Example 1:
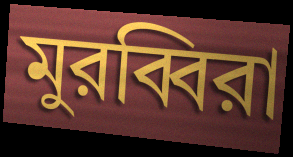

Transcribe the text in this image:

মুরব্বিরা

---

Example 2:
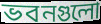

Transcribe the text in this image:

ভবনগুলো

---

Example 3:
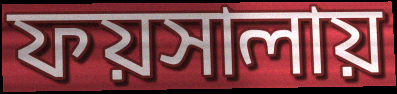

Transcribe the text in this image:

ফয়সালায়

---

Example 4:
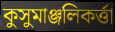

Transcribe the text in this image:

কুসুমাঞ্জলিকর্ত্তা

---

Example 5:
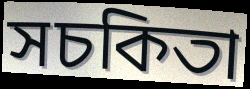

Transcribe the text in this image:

সচকিতা